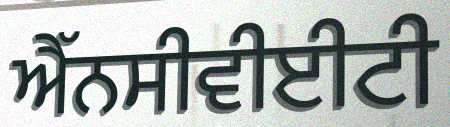
ਐੱਨਸੀਵੀਈਟੀ